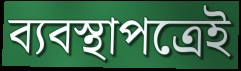
ব্যবস্থাপত্রেই